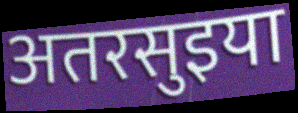
अतरसुइया